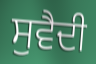
ਸੁਵੈਦੀ